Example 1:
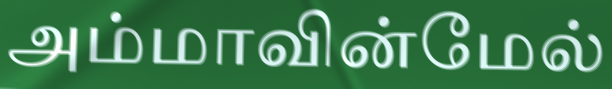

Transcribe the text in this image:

அம்மாவின்மேல்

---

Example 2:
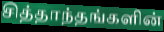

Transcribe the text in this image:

சித்தாந்தங்களின்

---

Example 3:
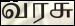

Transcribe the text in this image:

வரசு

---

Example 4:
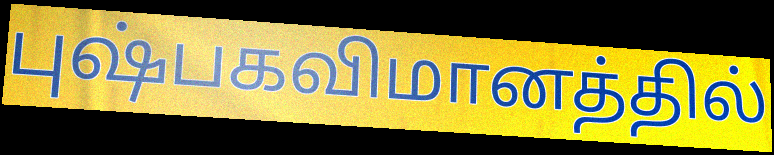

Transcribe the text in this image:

புஷ்பகவிமானத்தில்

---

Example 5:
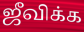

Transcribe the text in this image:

ஜீவிக்க